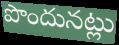
పొందునట్లు